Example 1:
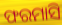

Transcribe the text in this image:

ଫରମାସି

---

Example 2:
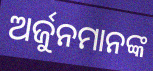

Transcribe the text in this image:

ଅର୍ଜୁନମାନଙ୍କ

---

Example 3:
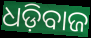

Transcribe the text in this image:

ଧଡ଼ିବାଜ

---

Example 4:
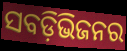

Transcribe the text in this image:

ସବଡ଼ିଭିଜନର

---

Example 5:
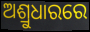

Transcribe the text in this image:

ଅଶ୍ରୁଧାରରେ